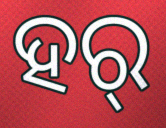
ହର୍